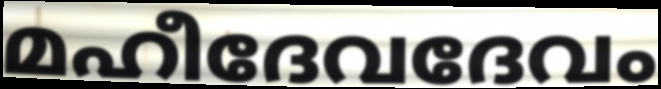
മഹീദേവദേവം